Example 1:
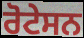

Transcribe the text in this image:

ਰੋਟੇਸਨ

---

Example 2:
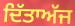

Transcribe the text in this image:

ਦਿੱਤਾਅੱਜ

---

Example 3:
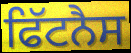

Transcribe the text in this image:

ਫਿੱਟਨੈਸ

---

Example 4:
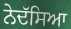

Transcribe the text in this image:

ਨੇਦੱਸਿਆ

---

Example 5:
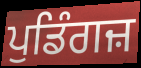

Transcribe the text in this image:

ਪੁਡਿੰਗਜ਼